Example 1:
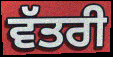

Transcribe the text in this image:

ਵੱਤਰੀ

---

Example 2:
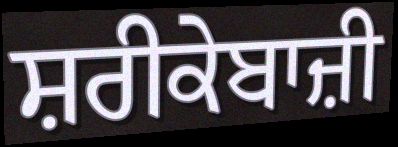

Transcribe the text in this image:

ਸ਼ਰੀਕੇਬਾਜ਼ੀ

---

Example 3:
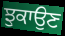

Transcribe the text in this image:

ਝੁਕਾਉਣ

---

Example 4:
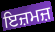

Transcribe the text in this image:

ਇਜ਼ਮਜ਼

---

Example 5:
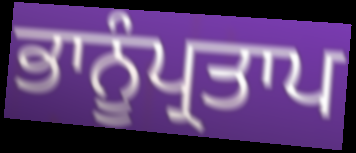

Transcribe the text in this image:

ਭਾਨੂੰਪ੍ਰਤਾਪ